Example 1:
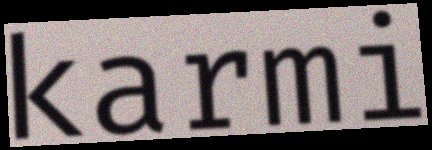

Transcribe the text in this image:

karmi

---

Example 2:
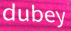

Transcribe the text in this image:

dubey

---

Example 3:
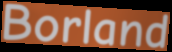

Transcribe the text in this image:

Borland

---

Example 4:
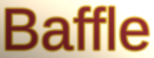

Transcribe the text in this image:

Baffle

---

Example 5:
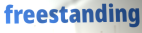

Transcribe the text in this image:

freestanding